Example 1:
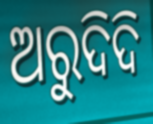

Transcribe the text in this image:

ଅରୁଦିଦି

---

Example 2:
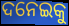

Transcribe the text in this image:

ଦନେଇକୁ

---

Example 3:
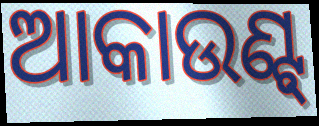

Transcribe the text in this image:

ଆକାଉଣ୍ଟ୍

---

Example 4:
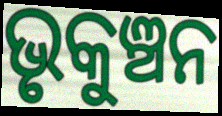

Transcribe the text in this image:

ଭୃକୁଞ୍ଚନ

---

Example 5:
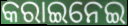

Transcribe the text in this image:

କରାଇନେଇ